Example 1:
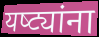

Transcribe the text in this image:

यष्ट्यांना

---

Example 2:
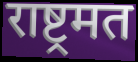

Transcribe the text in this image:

राष्ट्रमत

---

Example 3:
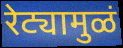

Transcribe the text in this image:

रेट्यामुळं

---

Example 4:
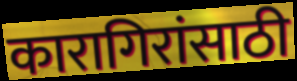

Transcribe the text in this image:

कारागिरांसाठी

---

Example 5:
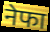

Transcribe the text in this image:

नेफा